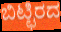
ಬಿಟ್ಟಿರದ